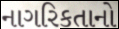
નાગરિકતાનો